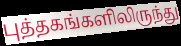
புத்தகங்களிலிருந்து